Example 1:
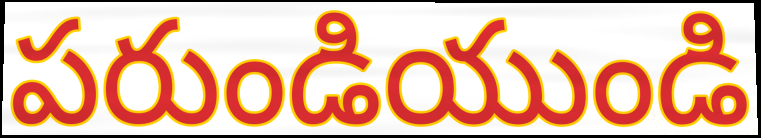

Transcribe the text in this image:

పరుండియుండి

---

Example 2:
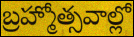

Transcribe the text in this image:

బ్రహ్మోత్సవాల్లో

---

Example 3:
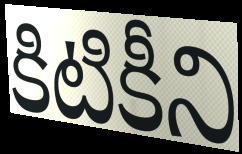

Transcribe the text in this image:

కిటికీని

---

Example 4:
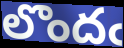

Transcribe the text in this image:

లొందఁ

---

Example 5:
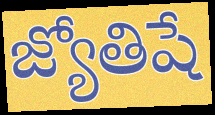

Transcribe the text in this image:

జ్యోతిషే